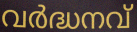
വർദ്ധനവ്